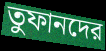
তুফানদের